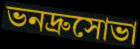
ভনদ্রুসোভা